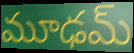
మూఢమ్